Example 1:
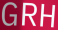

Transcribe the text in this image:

GRH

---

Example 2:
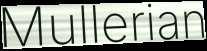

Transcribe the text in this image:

Mullerian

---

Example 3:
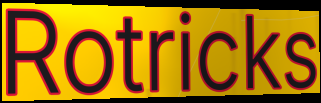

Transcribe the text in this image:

Rotricks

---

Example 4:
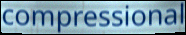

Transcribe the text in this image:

compressional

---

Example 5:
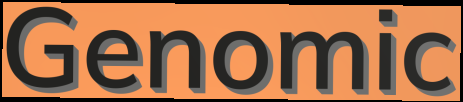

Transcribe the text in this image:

Genomic